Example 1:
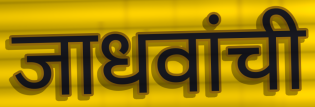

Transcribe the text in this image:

जाधवांची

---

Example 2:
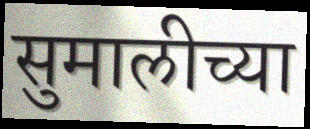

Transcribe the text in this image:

सुमालीच्या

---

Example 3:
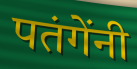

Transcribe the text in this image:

पतंगेंनी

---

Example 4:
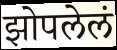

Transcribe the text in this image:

झोपलेलं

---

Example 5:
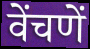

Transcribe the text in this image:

वेंचणें